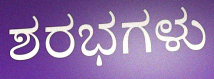
ಶರಭಗಳು